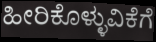
ಹೀರಿಕೊಳ್ಳುವಿಕೆಗೆ